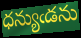
ధన్యుఁడను